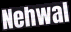
Nehwal